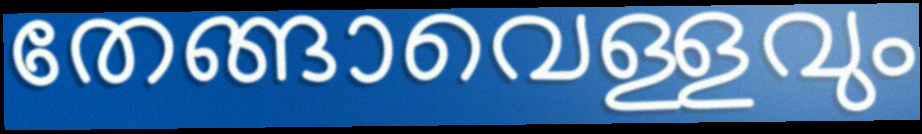
തേങ്ങാവെള്ളവും